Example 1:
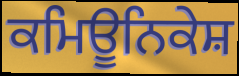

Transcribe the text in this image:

ਕਮਿਊਨਿਕੇਸ਼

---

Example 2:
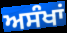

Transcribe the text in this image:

ਅਸੰਖਾਂ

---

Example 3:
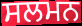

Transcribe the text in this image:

ਸਲਮਨ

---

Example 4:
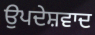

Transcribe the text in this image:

ਉਪਦੇਸ਼ਵਾਦ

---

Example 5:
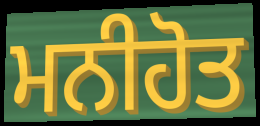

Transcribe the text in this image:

ਮਨੀਹੋਤ